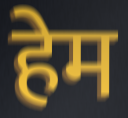
हेम